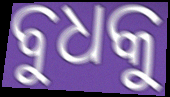
ବୁଧକୁ